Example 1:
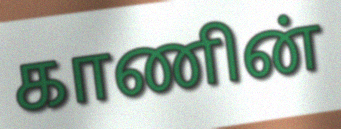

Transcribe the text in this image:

காணின்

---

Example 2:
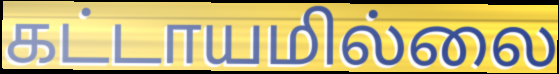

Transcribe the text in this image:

கட்டாயமில்லை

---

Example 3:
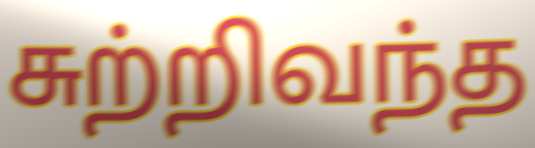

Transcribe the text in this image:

சுற்றிவந்த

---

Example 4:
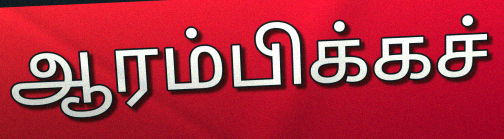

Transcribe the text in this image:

ஆரம்பிக்கச்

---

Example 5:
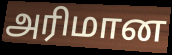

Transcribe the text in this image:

அரிமான